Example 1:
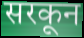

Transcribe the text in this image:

सरकून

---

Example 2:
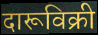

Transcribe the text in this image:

दारूविक्री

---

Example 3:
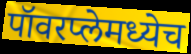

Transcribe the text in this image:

पॉवरप्लेमध्येच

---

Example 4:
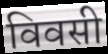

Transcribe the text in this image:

विवसी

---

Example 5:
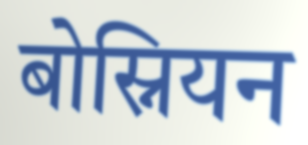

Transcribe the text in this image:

बोस्नियन